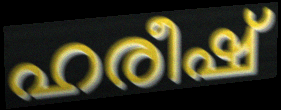
ഹരീഷ്